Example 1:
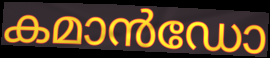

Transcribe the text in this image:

കമാൻഡോ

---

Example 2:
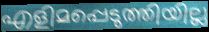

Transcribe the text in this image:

എളിമപ്പെടുത്തിയില്ല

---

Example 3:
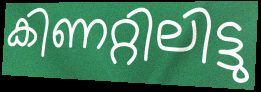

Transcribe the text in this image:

കിണറ്റിലിട്ടു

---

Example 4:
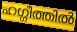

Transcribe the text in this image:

ഹഗ്ഗീത്തിൽ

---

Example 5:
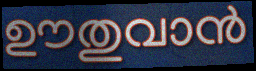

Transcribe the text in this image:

ഊതുവാൻ